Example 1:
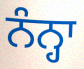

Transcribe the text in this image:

ਨੰਨ੍ਹਾ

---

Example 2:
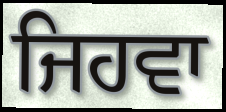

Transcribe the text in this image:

ਜਿਹਵਾ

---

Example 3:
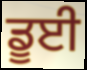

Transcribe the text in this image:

ਡੂਈ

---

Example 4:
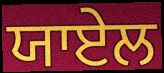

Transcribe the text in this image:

ਯਾਏਲ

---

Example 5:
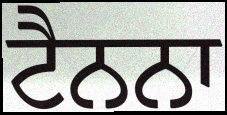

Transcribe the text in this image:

ਟੈਨਨਾ